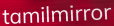
tamilmirror